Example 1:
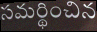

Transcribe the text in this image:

సమర్థించిన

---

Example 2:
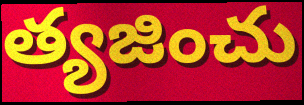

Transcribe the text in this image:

త్యజించు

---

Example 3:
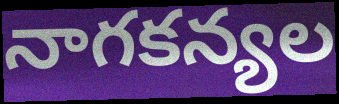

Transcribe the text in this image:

నాగకన్యల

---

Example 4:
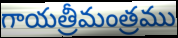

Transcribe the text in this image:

గాయత్రీమంత్రము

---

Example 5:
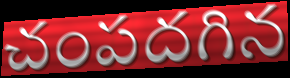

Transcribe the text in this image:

చంపదగిన